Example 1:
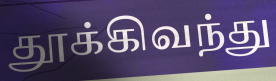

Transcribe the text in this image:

தூக்கிவந்து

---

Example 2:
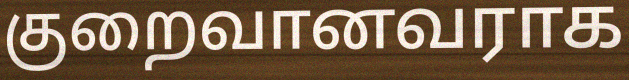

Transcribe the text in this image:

குறைவானவராக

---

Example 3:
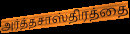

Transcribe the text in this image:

அர்த்தசாஸ்திரத்தை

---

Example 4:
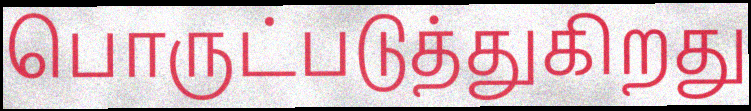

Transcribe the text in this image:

பொருட்படுத்துகிறது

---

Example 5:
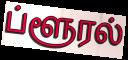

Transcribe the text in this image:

ப்ளூரல்